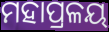
ମହାପ୍ରଳୟ